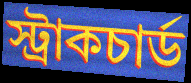
স্ট্রাকচার্ড